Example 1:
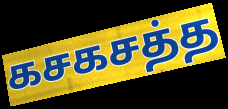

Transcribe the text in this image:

கசகசத்த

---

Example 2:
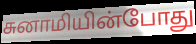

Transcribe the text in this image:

சுனாமியின்போது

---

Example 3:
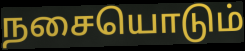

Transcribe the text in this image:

நசையொடும்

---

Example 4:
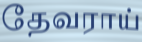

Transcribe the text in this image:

தேவராய்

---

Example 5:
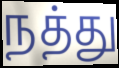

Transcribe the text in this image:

நத்து